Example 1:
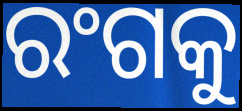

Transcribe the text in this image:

ରଂଗକୁ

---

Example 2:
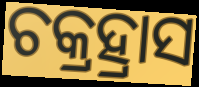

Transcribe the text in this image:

ଚକ୍ରହ୍ରାସ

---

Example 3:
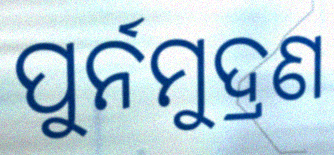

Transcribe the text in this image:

ପୁର୍ନମୁଦ୍ରଣ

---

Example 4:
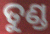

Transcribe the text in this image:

ତୁଣ୍ଡ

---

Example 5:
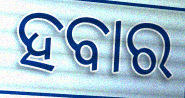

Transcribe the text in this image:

ହବାର